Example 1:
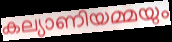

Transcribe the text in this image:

കല്യാണിയമ്മയും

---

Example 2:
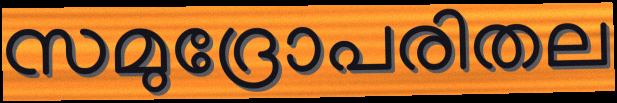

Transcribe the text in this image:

സമുദ്രോപരിതല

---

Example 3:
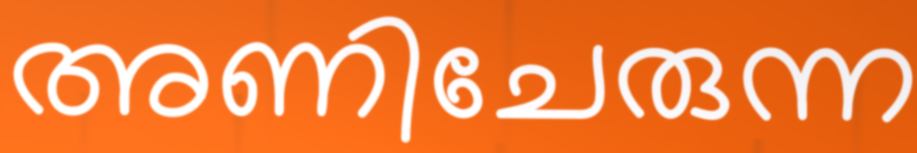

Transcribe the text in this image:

അണിചേരുന്ന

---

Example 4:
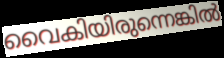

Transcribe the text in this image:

വൈകിയിരുന്നെങ്കിൽ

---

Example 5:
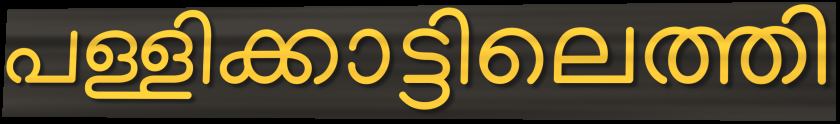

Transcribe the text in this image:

പള്ളിക്കാട്ടിലെത്തി